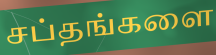
சப்தங்களை